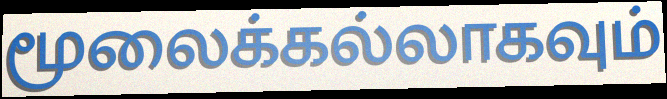
மூலைக்கல்லாகவும்